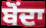
ਬੋੰਦਾ